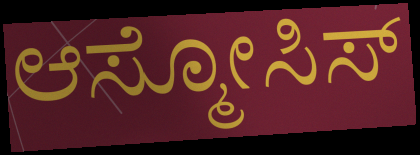
ಆಸ್ಮೋಸಿಸ್